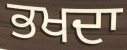
ਭਖਦਾ